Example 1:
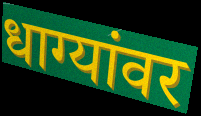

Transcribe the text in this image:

धाग्यांवर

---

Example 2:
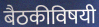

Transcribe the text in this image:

बैठकीविषयी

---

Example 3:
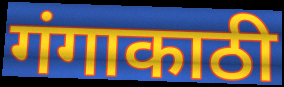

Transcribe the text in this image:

गंगाकाठी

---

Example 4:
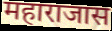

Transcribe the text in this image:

महाराजास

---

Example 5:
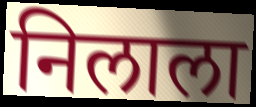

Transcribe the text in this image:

निलाला